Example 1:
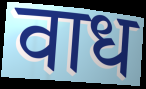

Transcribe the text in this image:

वाध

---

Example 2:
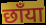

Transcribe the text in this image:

छाँया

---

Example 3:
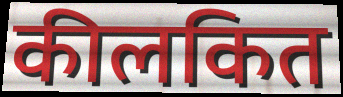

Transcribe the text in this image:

कीलकित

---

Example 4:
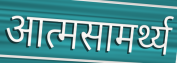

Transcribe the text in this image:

आत्मसामर्थ्य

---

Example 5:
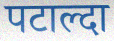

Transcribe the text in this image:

पटाल्दा